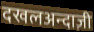
दखलअन्दाज़ी